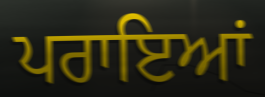
ਪਰਾਇਆਂ